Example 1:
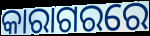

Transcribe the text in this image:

କାରାଗରରେ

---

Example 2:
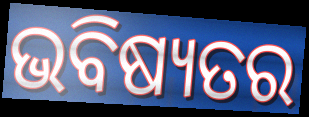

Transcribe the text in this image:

ଭବିଷ୍ୟତର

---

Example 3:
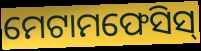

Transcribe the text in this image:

ମେଟାମଫେସିସ୍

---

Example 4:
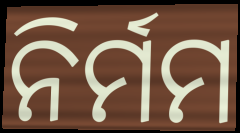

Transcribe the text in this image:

ନିର୍ମମ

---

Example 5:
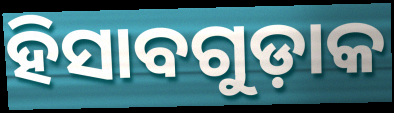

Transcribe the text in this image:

ହିସାବଗୁଡ଼ାକ